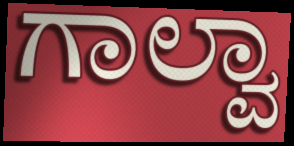
ಗಾಲ್ವಾ